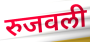
रुजवली